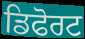
ਡਿਫੋਰਟ